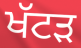
ਖੱਟੜ